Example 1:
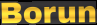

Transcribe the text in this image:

Borun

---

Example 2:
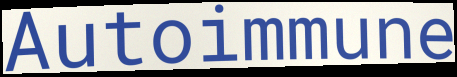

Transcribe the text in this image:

Autoimmune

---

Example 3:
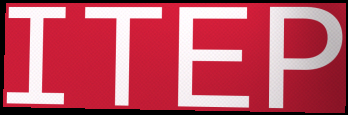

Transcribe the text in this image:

ITEP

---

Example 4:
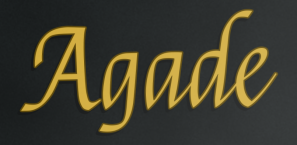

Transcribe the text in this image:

Agade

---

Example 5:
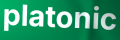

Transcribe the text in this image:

platonic